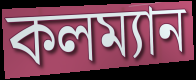
কলম্যান